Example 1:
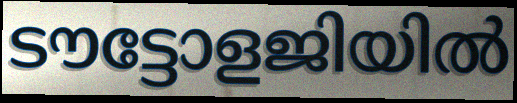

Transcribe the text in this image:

ടൗട്ടോളജിയിൽ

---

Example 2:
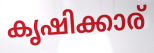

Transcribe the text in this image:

കൃഷിക്കാര്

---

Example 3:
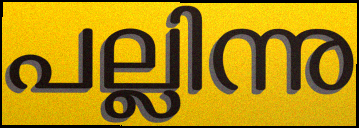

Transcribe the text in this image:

പല്ലിന്നു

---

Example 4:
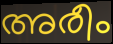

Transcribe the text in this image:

അരീം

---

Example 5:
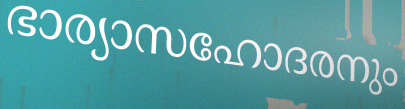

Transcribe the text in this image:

ഭാര്യാസഹോദരനും